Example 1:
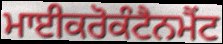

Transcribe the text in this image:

ਮਾਈਕਰੋਕੰਟੈਨਮੈਂਟ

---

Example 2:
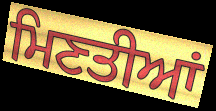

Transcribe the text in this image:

ਮਿਣਤੀਆਂ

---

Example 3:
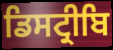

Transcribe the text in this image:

ਡਿਸਟ੍ਰੀਬਿ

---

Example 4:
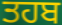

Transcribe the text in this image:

ਤਹਬ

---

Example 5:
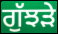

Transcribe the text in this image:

ਗੁੱਝੜੇ